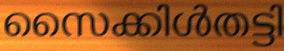
സൈക്കിൾതട്ടി